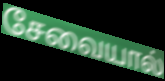
சேவையால்